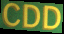
CDD